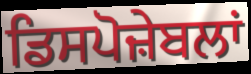
ਡਿਸਪੋਜ਼ੇਬਲਾਂ